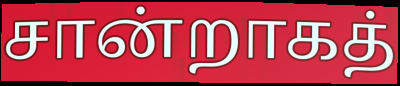
சான்றாகத்